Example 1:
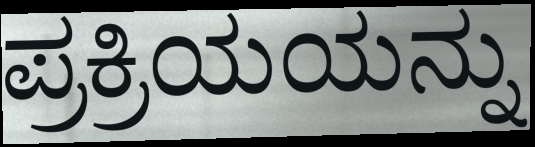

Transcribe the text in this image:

ಪ್ರಕ್ರಿಯಯನ್ನು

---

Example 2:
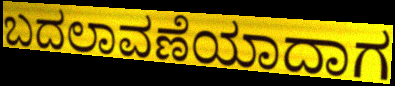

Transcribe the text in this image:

ಬದಲಾವಣೆಯಾದಾಗ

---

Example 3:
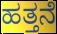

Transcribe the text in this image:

ಹತ್ತನೆ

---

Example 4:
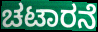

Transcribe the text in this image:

ಚಟಾರನೆ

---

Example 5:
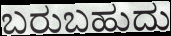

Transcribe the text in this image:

ಬರುಬಹುದು